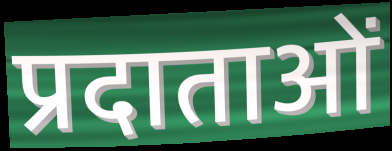
प्रदाताओं